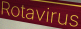
Rotavirus